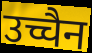
उच्चैन